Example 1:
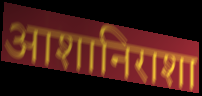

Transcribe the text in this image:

आशानिराशा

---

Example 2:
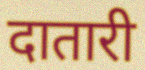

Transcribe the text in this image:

दातारी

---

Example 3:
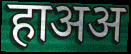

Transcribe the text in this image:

हाअअ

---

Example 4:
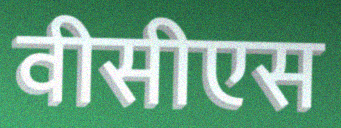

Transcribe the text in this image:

वीसीएस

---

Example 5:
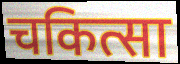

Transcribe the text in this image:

चकित्सा